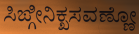
ಸಿಙ್ಗೀನಿಕ್ಖಸವಣ್ಣೋ